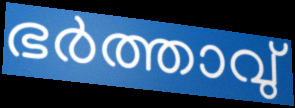
ഭർത്താവു്